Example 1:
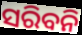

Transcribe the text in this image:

ସରିବନି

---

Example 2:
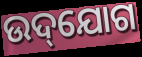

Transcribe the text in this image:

ଉଦ୍‌ଯୋଗ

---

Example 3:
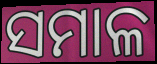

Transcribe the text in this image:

ସମାଳ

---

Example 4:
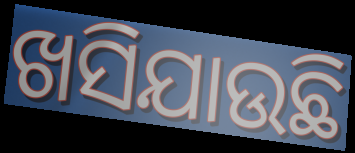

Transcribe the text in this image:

ଖସିଯାଉଛି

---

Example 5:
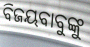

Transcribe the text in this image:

ବିଜୟବାବୁଙ୍କୁ